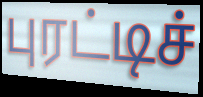
புரட்டிச்